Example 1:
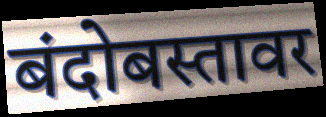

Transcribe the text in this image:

बंदोबस्तावर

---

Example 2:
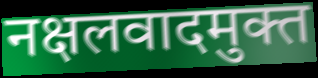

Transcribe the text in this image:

नक्षलवादमुक्त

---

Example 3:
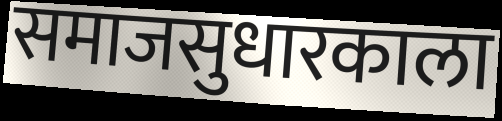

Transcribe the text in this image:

समाजसुधारकाला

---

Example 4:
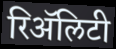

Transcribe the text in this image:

रिॲलिटी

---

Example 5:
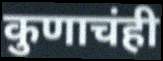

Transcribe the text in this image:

कुणाचंही